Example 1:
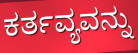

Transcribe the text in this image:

ಕರ್ತವ್ಯವನ್ನು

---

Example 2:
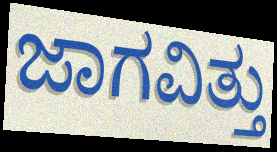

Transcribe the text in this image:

ಜಾಗವಿತ್ತು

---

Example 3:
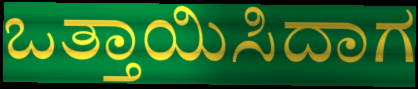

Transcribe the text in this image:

ಒತ್ತಾಯಿಸಿದಾಗ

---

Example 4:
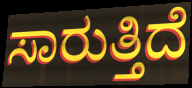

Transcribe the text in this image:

ಸಾರುತ್ತಿದೆ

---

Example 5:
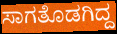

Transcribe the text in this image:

ಸಾಗತೊಡಗಿದ್ದ